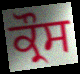
ਕ੍ਰੌਸ